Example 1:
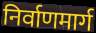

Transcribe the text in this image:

निर्वाणमार्ग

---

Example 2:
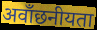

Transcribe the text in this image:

अवाँछनीयता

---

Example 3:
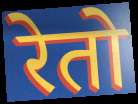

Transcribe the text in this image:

रेतो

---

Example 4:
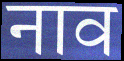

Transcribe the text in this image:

नाव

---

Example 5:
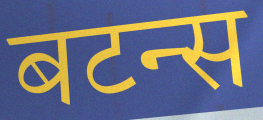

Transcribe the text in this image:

बटन्स